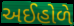
અઈહોળે